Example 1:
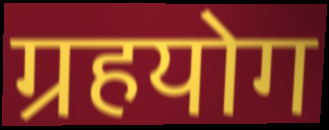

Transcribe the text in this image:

ग्रहयोग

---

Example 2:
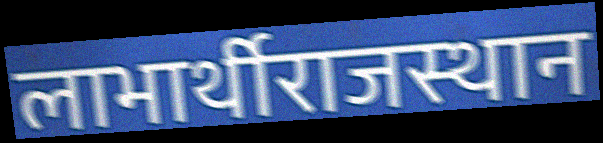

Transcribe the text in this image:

लाभार्थीराजस्थान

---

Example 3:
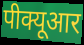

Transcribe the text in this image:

पीक्यूआर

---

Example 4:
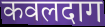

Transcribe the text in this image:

कवलदाग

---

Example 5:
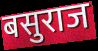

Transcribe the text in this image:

बसुराज